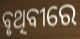
ବୃଥିବୀରେ